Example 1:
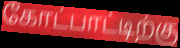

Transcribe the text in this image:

கோட்பாட்டிற்கு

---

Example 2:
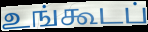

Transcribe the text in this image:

உங்கூடப்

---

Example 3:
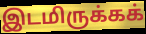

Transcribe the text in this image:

இடமிருக்கக்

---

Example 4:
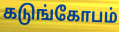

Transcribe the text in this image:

கடுங்கோபம்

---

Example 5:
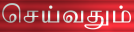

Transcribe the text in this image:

செய்வதும்